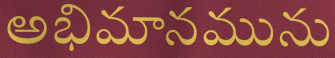
అభిమానమును